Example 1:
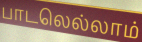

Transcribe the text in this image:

பாடலெல்லாம்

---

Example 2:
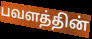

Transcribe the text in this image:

பவளத்தின்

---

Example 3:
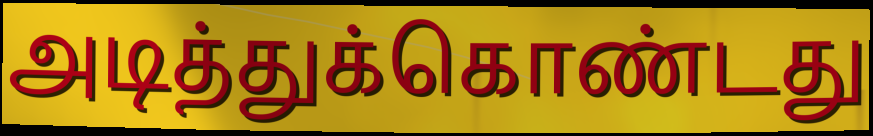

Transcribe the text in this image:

அடித்துக்கொண்டது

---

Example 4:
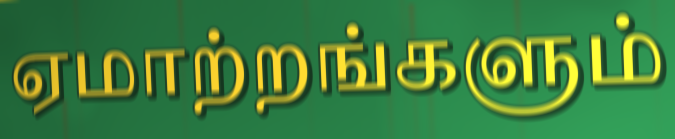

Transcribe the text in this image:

ஏமாற்றங்களும்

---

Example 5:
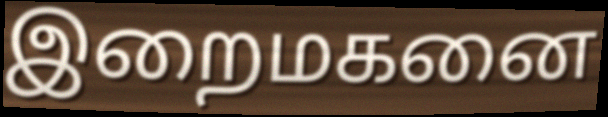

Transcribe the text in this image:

இறைமகனை